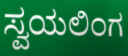
ಸ್ವಯಲಿಂಗ